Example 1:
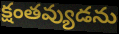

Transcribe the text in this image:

క్షంతవ్యుడను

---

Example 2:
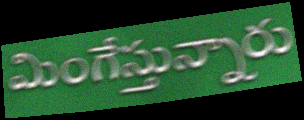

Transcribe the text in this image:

మింగేస్తున్నారు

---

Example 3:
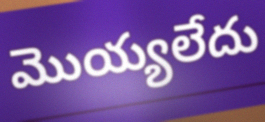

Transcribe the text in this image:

మొయ్యలేదు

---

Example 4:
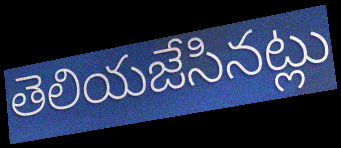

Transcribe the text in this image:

తెలియజేసినట్లు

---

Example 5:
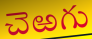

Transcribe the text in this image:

చెఱగు